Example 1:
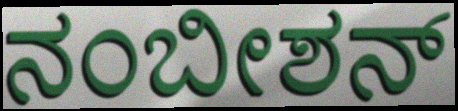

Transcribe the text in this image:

ನಂಬೀಶನ್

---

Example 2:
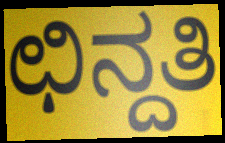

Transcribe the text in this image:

ಛಿನ್ದತಿ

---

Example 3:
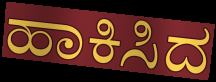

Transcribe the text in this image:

ಹಾಕಿಸಿದ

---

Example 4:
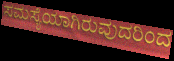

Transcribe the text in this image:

ಸಮಸ್ಯೆಯಾಗಿರುವುದರಿಂದ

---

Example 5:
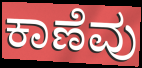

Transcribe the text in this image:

ಕಾಣೆವು